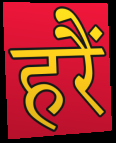
हरैं